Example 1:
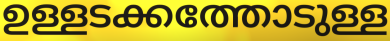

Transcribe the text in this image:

ഉള്ളടക്കത്തോടുള്ള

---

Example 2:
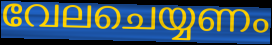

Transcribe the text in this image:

വേലചെയ്യണം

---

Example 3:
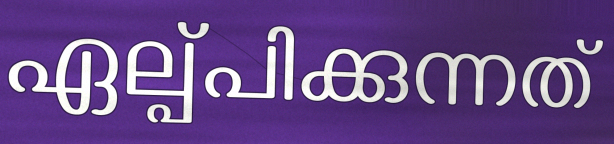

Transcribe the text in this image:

ഏല്പ്പിക്കുന്നത്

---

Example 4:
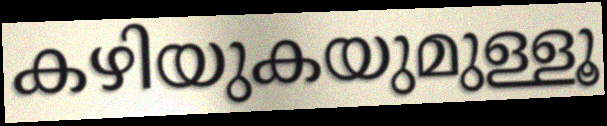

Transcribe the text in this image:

കഴിയുകയുമുള്ളൂ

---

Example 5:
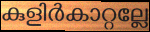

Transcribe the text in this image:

കുളിർകാറ്റല്ലേ